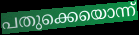
പതുക്കെയൊന്ന്